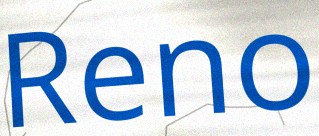
Reno